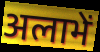
अलाभें